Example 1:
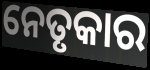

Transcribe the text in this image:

ନେତୃକାର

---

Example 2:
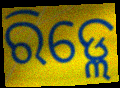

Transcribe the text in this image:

ରିଡ୍ଲେ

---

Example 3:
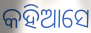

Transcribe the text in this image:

କହିଆସେ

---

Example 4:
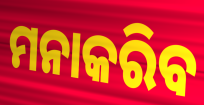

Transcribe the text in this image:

ମନାକରିବ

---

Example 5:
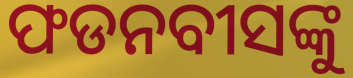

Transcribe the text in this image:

ଫଡନବୀସଙ୍କୁ